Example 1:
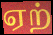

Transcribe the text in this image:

ஏற்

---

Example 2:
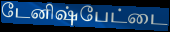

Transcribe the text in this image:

டேனிஷ்பேட்டை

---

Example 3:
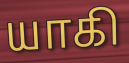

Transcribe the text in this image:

யாகி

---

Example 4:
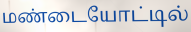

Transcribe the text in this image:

மண்டையோட்டில்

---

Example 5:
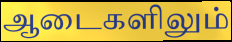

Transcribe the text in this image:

ஆடைகளிலும்